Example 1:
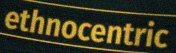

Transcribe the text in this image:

ethnocentric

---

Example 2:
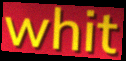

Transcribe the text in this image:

whit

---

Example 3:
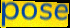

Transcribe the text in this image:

pose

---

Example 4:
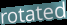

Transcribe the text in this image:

rotated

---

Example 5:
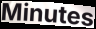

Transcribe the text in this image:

Minutes